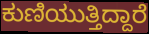
ಕುಣಿಯುತ್ತಿದ್ದಾರೆ